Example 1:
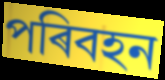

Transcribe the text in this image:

পৰিবহন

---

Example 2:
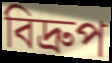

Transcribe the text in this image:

বিদ্ৰুপ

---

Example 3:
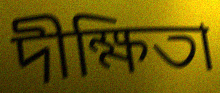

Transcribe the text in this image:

দীক্ষিতা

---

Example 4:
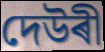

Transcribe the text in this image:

দেউৰী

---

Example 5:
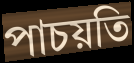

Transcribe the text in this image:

পাচয়তি